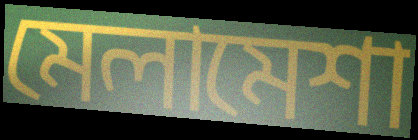
মেলামেশা